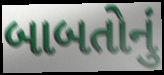
બાબતોનું